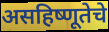
असहिष्णूतेचे